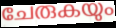
ചേരുകയും